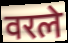
वरले